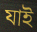
যাই